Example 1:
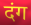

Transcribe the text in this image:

दंग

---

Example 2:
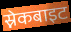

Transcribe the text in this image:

स्नेकबाइट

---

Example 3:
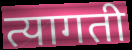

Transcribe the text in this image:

त्यागती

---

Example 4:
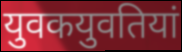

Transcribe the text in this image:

युवकयुवतियां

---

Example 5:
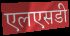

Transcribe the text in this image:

एलएसडी